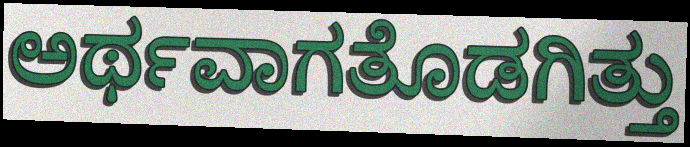
ಅರ್ಥವಾಗತೊಡಗಿತ್ತು